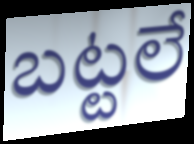
బట్టలే